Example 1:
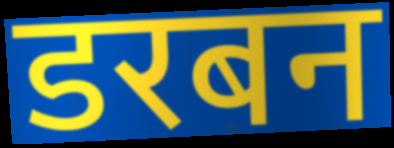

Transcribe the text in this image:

डरबन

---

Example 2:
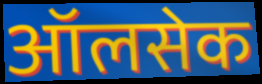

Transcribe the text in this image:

ऑलसेक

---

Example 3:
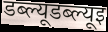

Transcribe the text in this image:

डब्ल्यूडब्ल्यूइ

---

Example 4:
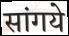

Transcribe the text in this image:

सांगये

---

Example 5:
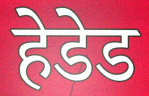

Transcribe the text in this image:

हेडेड